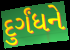
દુર્ગંધને